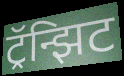
ट्रॅन्झिट